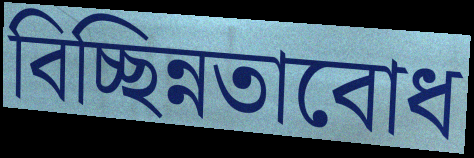
বিচ্ছিন্নতাবোধ